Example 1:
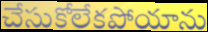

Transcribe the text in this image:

చేసుకోలేకపోయాను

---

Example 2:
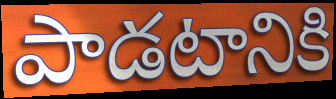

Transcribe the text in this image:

పాడటానికి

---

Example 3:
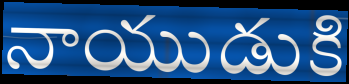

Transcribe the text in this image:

నాయుడుకి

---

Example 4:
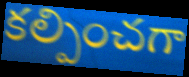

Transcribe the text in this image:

కల్పించగా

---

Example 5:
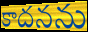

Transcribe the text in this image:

కాదనను